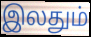
இலதும்